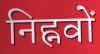
निह्नवों